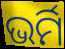
ଭର୍ମି